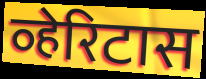
व्हेरिटास